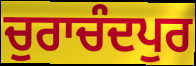
ਚੁਰਾਚੰਦਪੁਰ